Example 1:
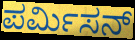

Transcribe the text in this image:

ಪರ್ಮಿಸನ್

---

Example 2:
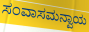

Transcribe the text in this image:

ಸಂವಾಸಮನ್ವಾಯ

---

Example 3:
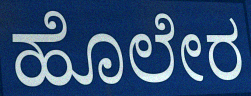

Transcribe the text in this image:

ಹೊಲೇರ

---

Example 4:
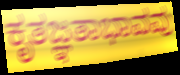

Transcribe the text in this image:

ಕೃತಜ್ಞತಾಭಾವವು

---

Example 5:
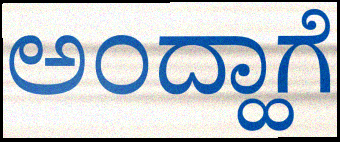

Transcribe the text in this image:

ಅಂದ್ಹಾಗೆ